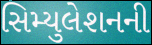
સિમ્યુલેશનની